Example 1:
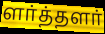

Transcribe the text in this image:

ளர்த்தளர்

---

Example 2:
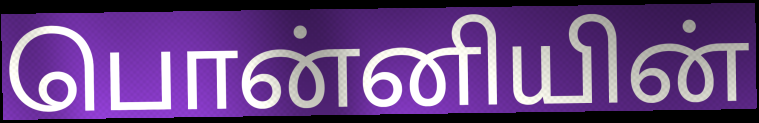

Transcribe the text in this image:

பொன்னியின்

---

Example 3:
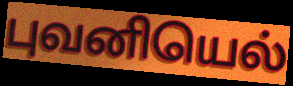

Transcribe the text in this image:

புவனியெல்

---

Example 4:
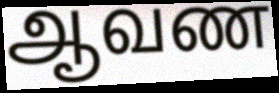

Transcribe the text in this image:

ஆவண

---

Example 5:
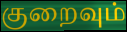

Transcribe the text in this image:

குறைவும்